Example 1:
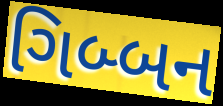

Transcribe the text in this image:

ગિબ્બન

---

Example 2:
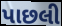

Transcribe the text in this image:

પાછલી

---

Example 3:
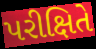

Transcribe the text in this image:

પરીક્ષિતે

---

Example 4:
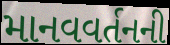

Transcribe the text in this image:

માનવવર્તનની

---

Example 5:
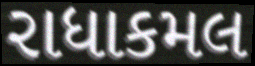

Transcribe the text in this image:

રાધાકમલ